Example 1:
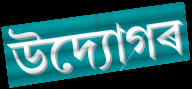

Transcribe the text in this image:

উদ্যোগৰ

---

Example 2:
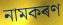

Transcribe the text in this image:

নামকৰণ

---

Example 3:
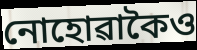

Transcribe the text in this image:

নোহোৱাকৈও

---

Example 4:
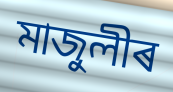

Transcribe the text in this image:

মাজুলীৰ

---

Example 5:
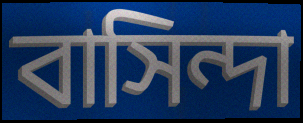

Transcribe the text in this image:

বাসিন্দা